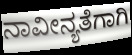
ನಾವೀನ್ಯತೆಗಾಗಿ